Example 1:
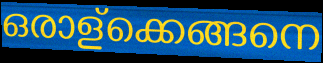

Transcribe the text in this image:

ഒരാള്ക്കെങ്ങനെ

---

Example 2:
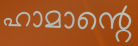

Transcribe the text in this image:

ഹാമാന്റെ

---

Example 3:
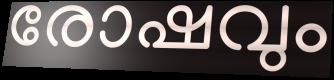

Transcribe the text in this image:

രോഷവും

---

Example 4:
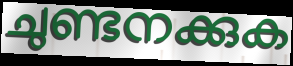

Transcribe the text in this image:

ചുണ്ടനക്കുക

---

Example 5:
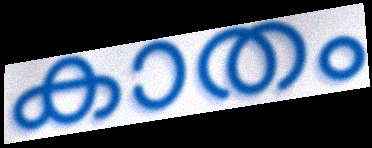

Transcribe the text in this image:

കാതം